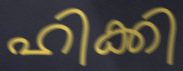
ഹിക്കി